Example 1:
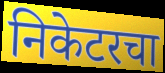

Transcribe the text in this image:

निकेटरचा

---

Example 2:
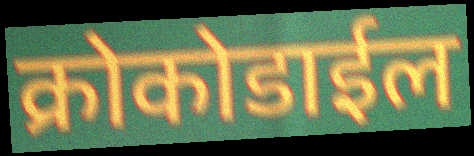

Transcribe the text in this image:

क्रोकोडाईल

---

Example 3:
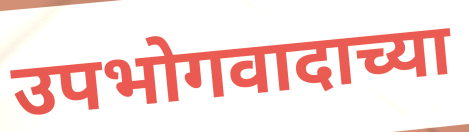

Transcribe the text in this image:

उपभोगवादाच्या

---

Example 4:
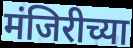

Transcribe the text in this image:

मंजिरीच्या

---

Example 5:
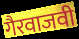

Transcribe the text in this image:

गैरवाजवी